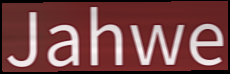
Jahwe